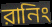
রানিং